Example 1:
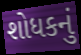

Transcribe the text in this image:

શોધકનું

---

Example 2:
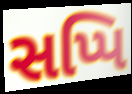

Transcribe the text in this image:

સપ્પિ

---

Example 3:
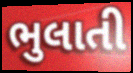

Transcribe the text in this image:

ભુલાતી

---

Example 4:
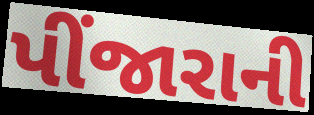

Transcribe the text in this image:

પીંજારાની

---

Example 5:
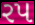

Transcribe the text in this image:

રપ